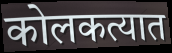
कोलकत्यात